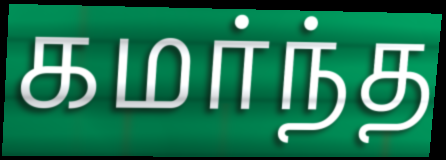
கமர்ந்த